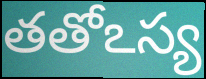
తతోఽస్య